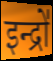
इन्द्रो॑